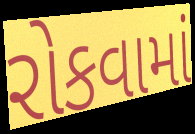
રોકવામાં